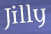
Jilly